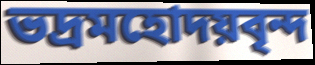
ভদ্রমহোদয়বৃন্দ